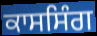
ਕਾਸਸਿੰਗ